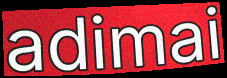
adimai